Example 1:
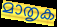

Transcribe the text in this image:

മാതൃക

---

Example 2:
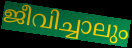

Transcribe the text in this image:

ജീവിച്ചാലും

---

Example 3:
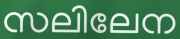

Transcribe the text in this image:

സലിലേന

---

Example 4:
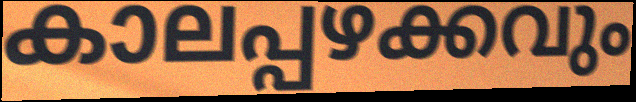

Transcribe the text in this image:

കാലപ്പഴക്കവും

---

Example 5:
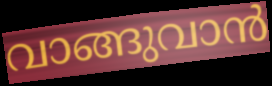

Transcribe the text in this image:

വാങ്ങുവാൻ